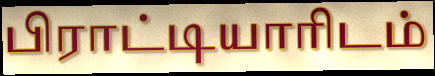
பிராட்டியாரிடம்